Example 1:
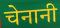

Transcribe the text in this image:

चेनानी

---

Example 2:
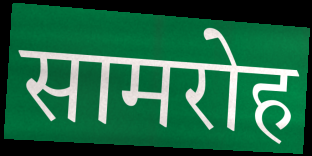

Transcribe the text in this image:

सामरोह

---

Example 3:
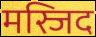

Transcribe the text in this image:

मस्जिद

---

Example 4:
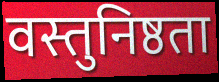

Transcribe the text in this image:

वस्तुनिष्ठता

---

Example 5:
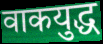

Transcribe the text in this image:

वाकयुद्ध